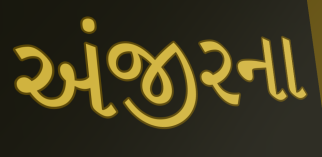
અંજીરના